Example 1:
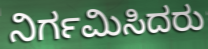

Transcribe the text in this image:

ನಿರ್ಗಮಿಸಿದರು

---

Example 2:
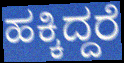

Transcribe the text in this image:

ಹಕ್ಕಿದ್ದರೆ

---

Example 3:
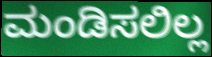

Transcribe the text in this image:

ಮಂಡಿಸಲಿಲ್ಲ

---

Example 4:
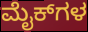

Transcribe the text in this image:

ಮೈಕ್‌ಗಳ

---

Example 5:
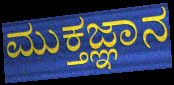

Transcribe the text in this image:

ಮುಕ್ತಜ್ಞಾನ